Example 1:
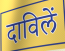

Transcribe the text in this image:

दाविलें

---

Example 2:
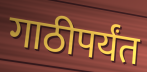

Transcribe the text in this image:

गाठीपर्यंत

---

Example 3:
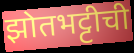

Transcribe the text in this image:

झोतभट्टीची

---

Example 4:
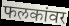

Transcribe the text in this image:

फलकांवर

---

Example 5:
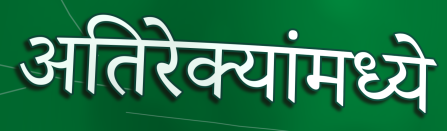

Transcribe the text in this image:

अतिरेक्यांमध्ये